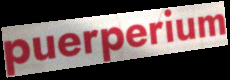
puerperium